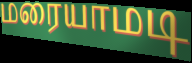
மரையாமடி